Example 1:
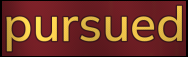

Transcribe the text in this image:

pursued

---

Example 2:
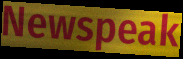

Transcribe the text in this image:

Newspeak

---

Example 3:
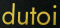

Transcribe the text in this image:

dutoi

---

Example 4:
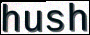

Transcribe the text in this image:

hush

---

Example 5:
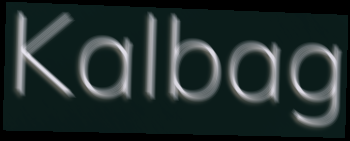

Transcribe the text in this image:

Kalbag